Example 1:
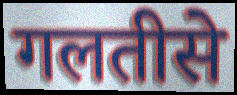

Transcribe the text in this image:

गलतीसे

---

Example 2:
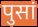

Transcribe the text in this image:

पुसां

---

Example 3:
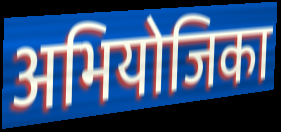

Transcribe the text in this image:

अभियोजिका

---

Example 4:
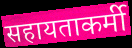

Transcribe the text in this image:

सहायताकर्मी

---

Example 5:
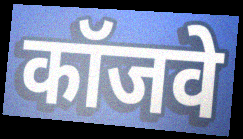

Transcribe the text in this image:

कॉजवे